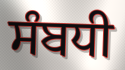
ਸੰਬਧੀ